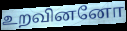
உறவினனோ